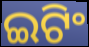
ଇଟିଂ